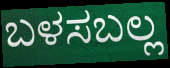
ಬಳಸಬಲ್ಲ